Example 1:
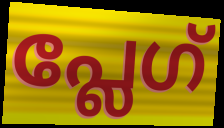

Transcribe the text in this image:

പ്ലേഗ്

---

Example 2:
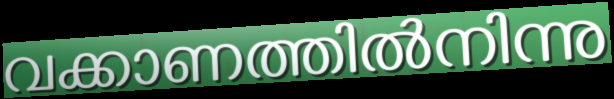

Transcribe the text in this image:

വക്കാണത്തിൽനിന്നു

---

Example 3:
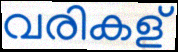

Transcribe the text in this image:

വരികള്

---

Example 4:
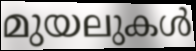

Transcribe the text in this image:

മുയലുകൾ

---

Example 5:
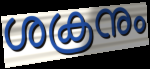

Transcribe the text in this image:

ശക്രനും